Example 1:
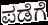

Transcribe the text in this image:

ಪಡೆಗೆ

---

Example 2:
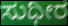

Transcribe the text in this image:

ಸುಧೀರ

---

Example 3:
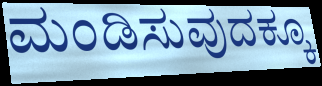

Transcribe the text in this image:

ಮಂಡಿಸುವುದಕ್ಕೂ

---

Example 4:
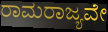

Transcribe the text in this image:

ರಾಮರಾಜ್ಯವೇ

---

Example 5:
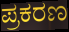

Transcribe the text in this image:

ಪ್ರಕರಣ